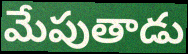
మేపుతాడు